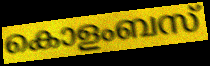
കൊളംബസ്